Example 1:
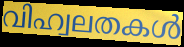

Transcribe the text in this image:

വിഹ്വലതകൾ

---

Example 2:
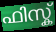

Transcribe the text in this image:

ഫിസ്ക്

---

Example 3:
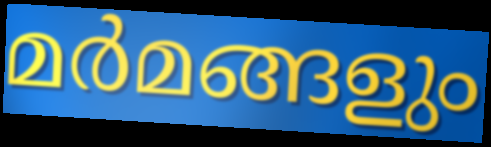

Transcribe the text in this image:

മർമങ്ങളും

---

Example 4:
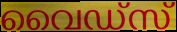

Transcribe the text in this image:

വൈഡ്സ്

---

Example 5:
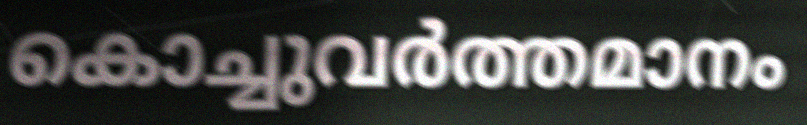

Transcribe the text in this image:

കൊച്ചുവർത്തമാനം